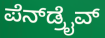
ಪೆನ್‌ಡ್ರೈವ್